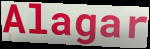
Alagar